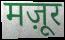
मज़ूर